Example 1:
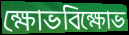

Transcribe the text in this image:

ক্ষোভবিক্ষোভ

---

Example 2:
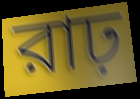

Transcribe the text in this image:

রাঢ়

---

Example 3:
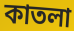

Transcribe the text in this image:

কাতলা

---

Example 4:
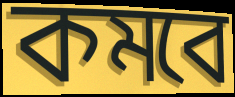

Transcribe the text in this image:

কমবে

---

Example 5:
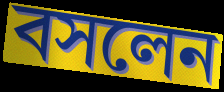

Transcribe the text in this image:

বসলেন